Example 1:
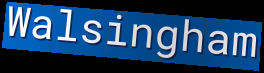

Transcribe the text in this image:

Walsingham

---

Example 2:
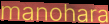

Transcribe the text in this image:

manohara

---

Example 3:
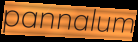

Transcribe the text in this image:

pannalum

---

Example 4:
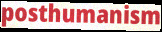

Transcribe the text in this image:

posthumanism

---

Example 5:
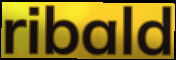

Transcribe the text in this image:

ribald